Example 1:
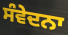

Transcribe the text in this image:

ਸੰਵੇਦਨਾ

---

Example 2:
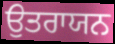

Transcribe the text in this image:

ਉਤਰਾਯਨ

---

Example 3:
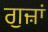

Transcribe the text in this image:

ਗੁਜ਼ਾਂ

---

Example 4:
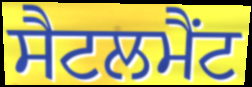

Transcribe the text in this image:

ਸੈਟਲਮੈਂਟ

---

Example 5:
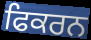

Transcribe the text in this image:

ਫਿਕਰਨ